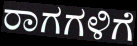
ರಾಗಗಳಿಗೆ